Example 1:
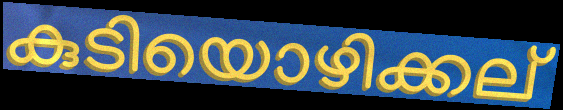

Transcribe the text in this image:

കുടിയൊഴിക്കല്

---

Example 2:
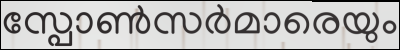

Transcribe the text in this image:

സ്പോൺസർമാരെയും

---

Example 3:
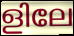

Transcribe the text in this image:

ളിലേ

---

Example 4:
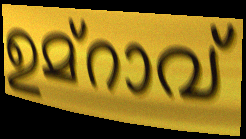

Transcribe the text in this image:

ഉമ്റാവ്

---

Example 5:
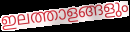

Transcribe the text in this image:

ഇലത്താളങ്ങളും